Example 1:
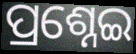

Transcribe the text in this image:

ପ୍ରଶ୍ନେଇ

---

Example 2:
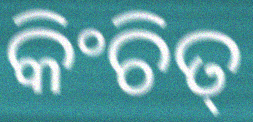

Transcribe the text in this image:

କିଂଚିତ୍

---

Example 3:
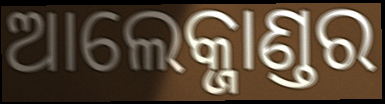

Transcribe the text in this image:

ଆଲେକ୍ଜାଣ୍ଡର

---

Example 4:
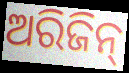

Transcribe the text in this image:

ଅରିଜିନ୍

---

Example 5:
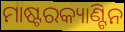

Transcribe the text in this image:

ମାଷ୍ଟରକ୍ୟାଣ୍ଟିନ